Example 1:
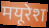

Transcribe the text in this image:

मयूरेश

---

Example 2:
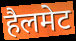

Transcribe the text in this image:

हैलमेट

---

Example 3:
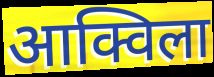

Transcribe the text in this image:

आक्विला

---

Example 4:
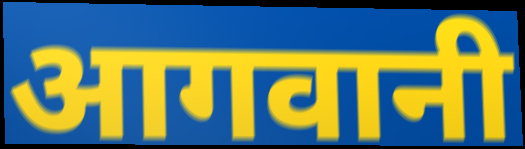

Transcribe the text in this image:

आगवानी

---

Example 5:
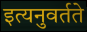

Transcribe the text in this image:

इत्यनुवर्तते